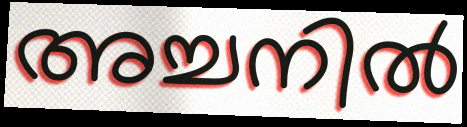
അച്ചനിൽ